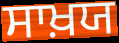
ਸਾਖ਼ਯ